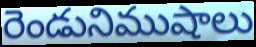
రెండునిముషాలు